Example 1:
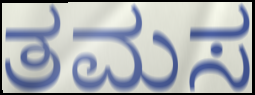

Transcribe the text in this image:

ತಮಸ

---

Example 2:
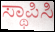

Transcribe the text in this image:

ಸ್ಥಾಪಿಸಿ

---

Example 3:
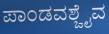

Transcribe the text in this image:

ಪಾಂಡವಶ್ಚೈವ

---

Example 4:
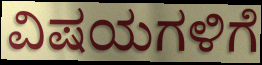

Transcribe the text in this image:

ವಿಷಯಗಳಿಗೆ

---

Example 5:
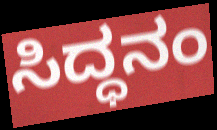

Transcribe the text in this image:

ಸಿದ್ಧನಂ